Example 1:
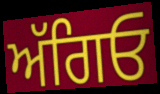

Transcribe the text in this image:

ਅੱਗਿਓ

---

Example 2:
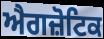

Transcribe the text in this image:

ਐਗਜ਼ੋਟਿਕ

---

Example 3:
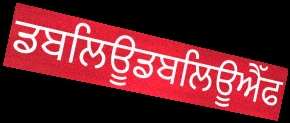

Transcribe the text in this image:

ਡਬਲਿਊਡਬਲਿਊਐੱਫ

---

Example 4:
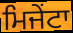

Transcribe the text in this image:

ਮਿਜੇਂਟਾ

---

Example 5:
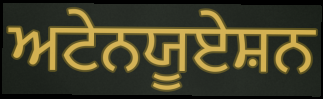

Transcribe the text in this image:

ਅਟੇਨਯੂਏਸ਼ਨ